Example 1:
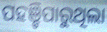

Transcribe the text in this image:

ପହଞ୍ଚିପାରୁଥିଲା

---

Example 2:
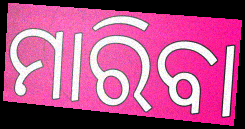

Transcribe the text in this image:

ମାରିବା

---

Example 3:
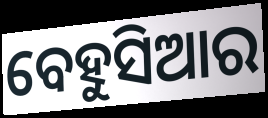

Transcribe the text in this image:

ବେହୁସିଆର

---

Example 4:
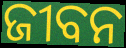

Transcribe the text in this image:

ଜୀବନ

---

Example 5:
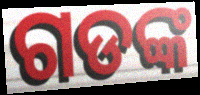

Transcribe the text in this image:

ଗଡଙ୍କ